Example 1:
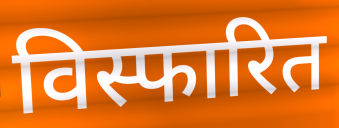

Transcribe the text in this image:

विस्फारित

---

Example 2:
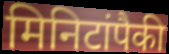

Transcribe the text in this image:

मिनिटांपैकी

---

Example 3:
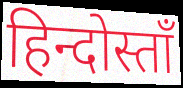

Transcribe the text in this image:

हिन्दोस्ताँ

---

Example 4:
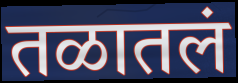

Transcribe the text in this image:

तळातलं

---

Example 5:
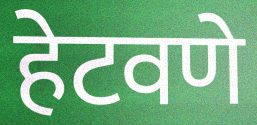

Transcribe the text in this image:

हेटवणे